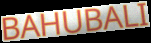
BAHUBALI